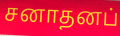
சனாதனப்